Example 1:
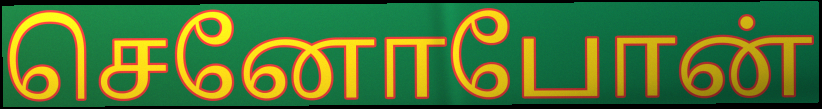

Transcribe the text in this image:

செனோபோன்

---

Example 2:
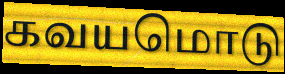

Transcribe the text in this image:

கவயமொடு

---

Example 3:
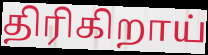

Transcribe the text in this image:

திரிகிறாய்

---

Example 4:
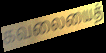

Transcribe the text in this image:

கவலையைத்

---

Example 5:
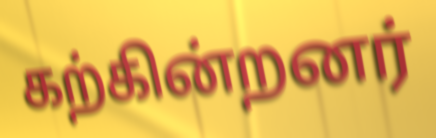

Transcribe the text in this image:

கற்கின்றனர்